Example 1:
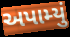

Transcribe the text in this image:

અપામ્યું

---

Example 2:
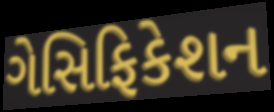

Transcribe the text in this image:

ગેસિફિકેશન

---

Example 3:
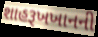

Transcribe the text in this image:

શાહરૂખખાનની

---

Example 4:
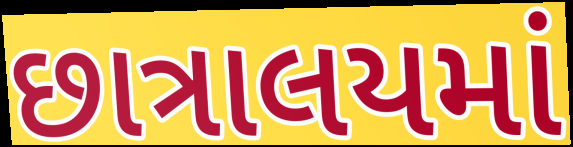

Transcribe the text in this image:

છાત્રાલયમાં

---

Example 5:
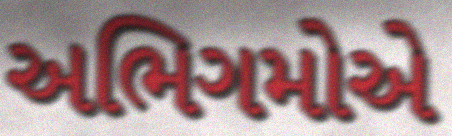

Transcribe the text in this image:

અભિગમોએ